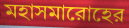
মহাসমারোহের